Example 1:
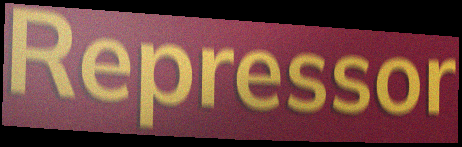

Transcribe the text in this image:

Repressor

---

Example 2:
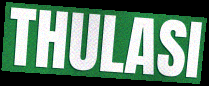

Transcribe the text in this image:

THULASI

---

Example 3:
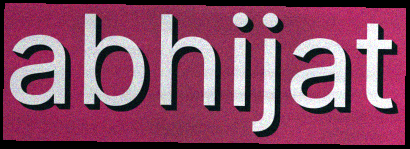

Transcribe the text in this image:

abhijat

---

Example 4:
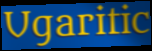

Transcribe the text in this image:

Ugaritic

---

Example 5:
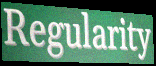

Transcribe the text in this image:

Regularity